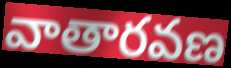
వాతారవణ